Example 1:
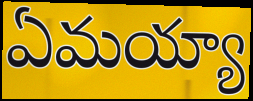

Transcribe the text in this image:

ఏమయ్యా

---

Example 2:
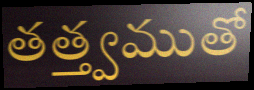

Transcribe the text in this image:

తత్త్వముతో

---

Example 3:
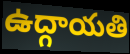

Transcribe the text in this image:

ఉద్గాయతి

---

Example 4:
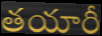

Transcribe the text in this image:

తయారీ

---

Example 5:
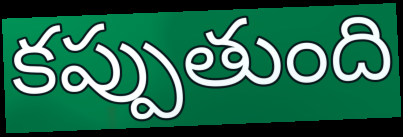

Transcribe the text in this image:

కప్పుతుంది